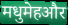
मधुमेहऔर